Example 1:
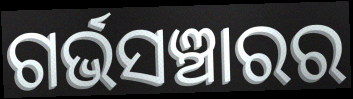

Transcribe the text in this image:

ଗର୍ଭସଞ୍ଚାରର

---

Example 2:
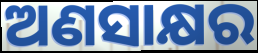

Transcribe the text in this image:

ଅଣସାକ୍ଷର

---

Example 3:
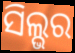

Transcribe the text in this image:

ସିଲ୍ଭର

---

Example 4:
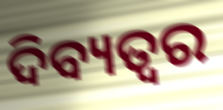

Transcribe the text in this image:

ଦିବ୍ୟତ୍ବର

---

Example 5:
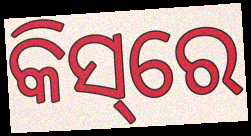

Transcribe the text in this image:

କିସ୍‌ରେ